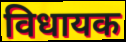
विधायक